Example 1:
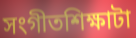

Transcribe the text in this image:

সংগীতশিক্ষাটা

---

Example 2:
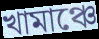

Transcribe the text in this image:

খামাঞ্চে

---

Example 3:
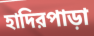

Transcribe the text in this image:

হাদিরপাড়া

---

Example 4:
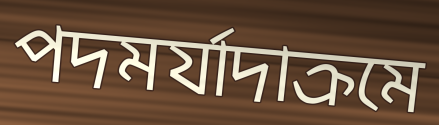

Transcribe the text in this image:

পদমর্যাদাক্রমে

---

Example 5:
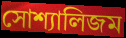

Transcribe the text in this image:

সোশ্যালিজম